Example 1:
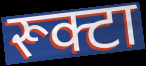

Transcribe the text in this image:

रूक्टा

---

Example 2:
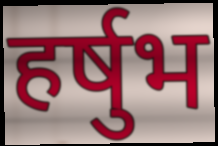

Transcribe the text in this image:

हर्षुभ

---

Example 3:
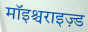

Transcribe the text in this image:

मॉइश्चराइज़्ड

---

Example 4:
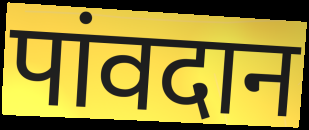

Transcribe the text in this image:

पांवदान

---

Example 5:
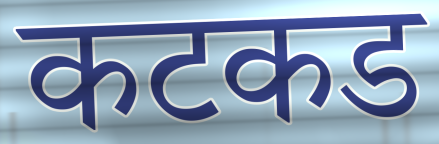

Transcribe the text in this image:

कटकड